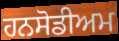
ਹਨਸੋਡੀਅਮ